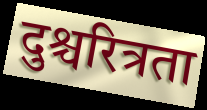
दुश्चरित्रता